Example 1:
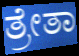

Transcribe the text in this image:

ತ್ರೇತಾ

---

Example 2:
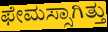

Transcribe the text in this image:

ಫೇಮಸ್ಸಾಗಿತ್ತು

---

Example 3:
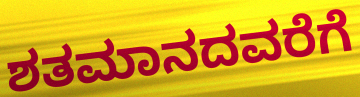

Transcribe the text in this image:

ಶತಮಾನದವರೆಗೆ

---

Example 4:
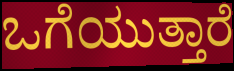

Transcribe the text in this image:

ಒಗೆಯುತ್ತಾರೆ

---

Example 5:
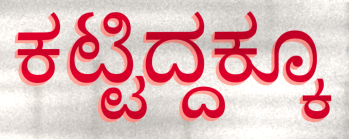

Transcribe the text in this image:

ಕಟ್ಟಿದ್ದಕ್ಕೂ